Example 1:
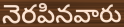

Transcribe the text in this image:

నెరపినవారు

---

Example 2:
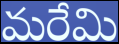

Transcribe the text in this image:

మరేమి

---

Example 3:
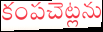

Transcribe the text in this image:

కంపచెట్లను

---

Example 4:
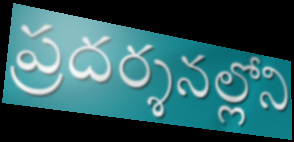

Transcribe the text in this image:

ప్రదర్శనల్లోని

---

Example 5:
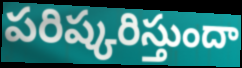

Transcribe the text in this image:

పరిష్కరిస్తుందా